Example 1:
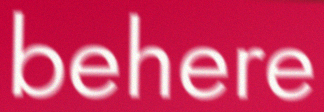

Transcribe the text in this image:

behere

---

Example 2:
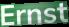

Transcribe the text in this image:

Ernst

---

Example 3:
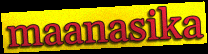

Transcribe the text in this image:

maanasika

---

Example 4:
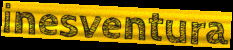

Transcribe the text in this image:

inesventura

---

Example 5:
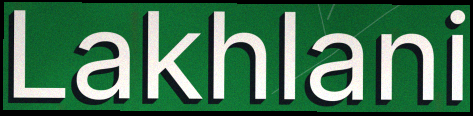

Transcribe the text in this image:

Lakhlani